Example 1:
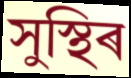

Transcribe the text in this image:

সুস্থিৰ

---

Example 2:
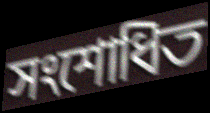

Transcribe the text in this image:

সংশোধিত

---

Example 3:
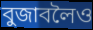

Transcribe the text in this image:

বুজাবলৈও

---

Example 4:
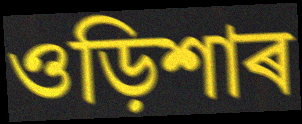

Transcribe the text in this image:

ওড়িশাৰ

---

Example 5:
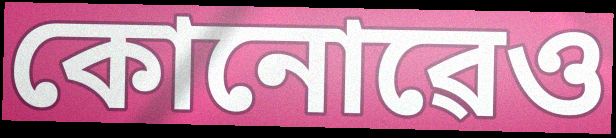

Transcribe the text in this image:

কোনোৱেও